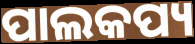
ପାଲକପ୍ୟ